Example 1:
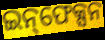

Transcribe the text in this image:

ଇନ୍‌ଫେକ୍ସନ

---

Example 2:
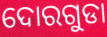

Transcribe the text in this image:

ଦୋରଗୁଡା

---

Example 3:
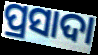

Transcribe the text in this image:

ପ୍ରସାଦା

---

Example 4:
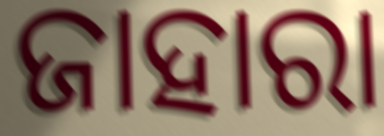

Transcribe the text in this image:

ଜାହାରା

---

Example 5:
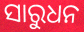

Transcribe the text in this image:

ସାରୁଧନ